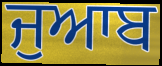
ਜੁਆਬ